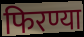
फिरण्या